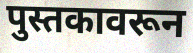
पुस्तकावरून